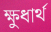
ক্ষুধার্থ